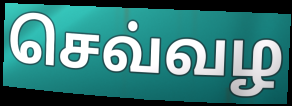
செவ்வழ